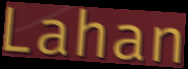
Lahan